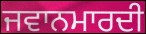
ਜਵਾਨਮਾਰਦੀ